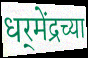
धर्मेंद्रच्या